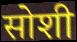
सोशी